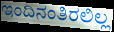
ಇಂದಿನಂತಿರಲಿಲ್ಲ